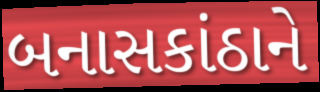
બનાસકાંઠાને